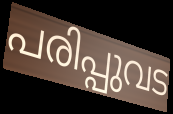
പരിപ്പുവട